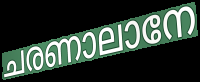
ചരണാലാനേ